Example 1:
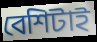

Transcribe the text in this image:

বেশিটাই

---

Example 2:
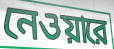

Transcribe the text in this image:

নেওয়ারে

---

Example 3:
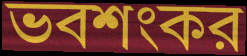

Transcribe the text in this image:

ভবশংকর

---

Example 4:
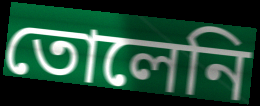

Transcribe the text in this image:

তোলেনি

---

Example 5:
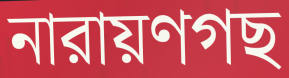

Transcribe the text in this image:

নারায়ণগছ